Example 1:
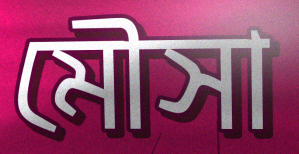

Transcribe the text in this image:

মৌসা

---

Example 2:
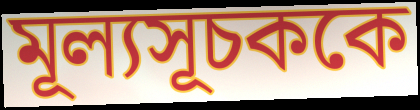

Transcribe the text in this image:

মূল্যসূচককে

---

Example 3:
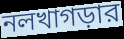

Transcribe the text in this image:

নলখাগড়ার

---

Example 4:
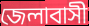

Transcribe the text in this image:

জেলাবাসী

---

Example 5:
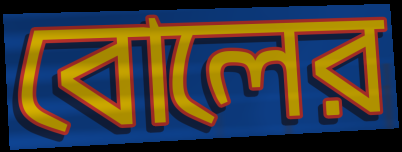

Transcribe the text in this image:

বোলের